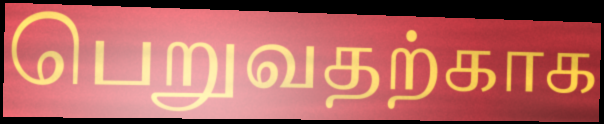
பெறுவதற்காக